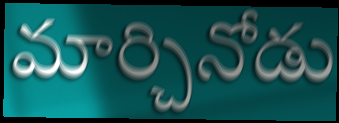
మార్చినోడు